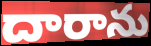
దారాను